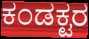
ಕಂಡಕ್ಟರ